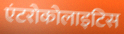
एंटरोकोलाइटिस